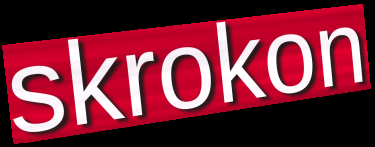
skrokon